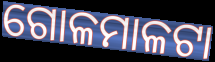
ଗୋଳମାଳଟା